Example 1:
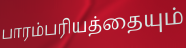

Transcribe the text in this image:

பாரம்பரியத்தையும்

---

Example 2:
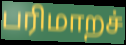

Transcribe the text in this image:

பரிமாறச்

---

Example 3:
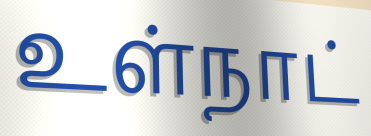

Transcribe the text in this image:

உள்நாட்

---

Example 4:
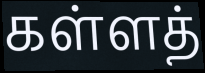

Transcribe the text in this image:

கள்ளத்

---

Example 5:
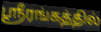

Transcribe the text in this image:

ஸ்ரீரங்கத்தில்